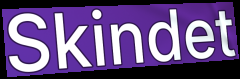
Skindet